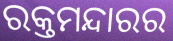
ରକ୍ତମନ୍ଦାରର